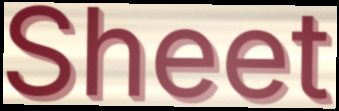
Sheet